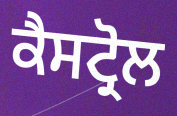
ਕੈਸਟ੍ਰੋਲ